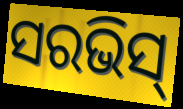
ସରଭିସ୍